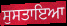
ਸੁਸਤਾਇਆ